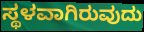
ಸ್ಥಳವಾಗಿರುವುದು